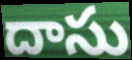
దాసు